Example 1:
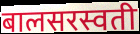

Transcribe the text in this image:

बालसरस्वती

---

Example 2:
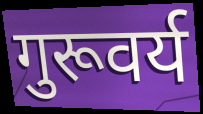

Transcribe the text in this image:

गुरूवर्य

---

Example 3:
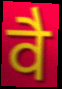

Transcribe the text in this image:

वै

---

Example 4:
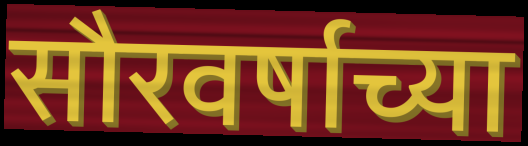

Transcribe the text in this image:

सौरवर्षाच्या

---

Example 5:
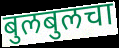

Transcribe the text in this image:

बुलबुलचा